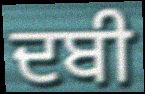
ਦਬੀ